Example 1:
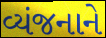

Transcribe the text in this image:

વ્યંજનાને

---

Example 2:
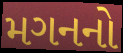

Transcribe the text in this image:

મગનનો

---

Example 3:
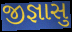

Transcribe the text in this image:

જીજ્ઞાસુ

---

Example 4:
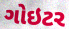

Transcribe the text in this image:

ગોઇટર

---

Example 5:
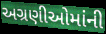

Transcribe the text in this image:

અગ્રણીઓમાંની